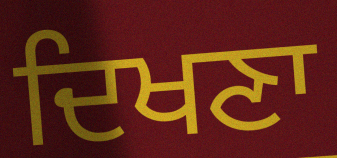
ਦਿਖਣਾ